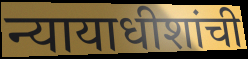
न्यायाधीशांची